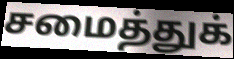
சமைத்துக்